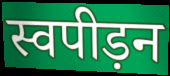
स्वपीड़न